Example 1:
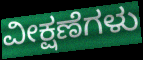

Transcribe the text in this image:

ವೀಕ್ಷಣೆಗಳು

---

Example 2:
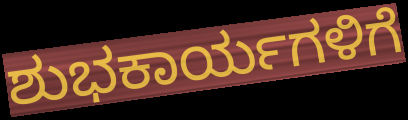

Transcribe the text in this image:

ಶುಭಕಾರ್ಯಗಳಿಗೆ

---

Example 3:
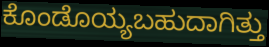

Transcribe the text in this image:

ಕೊಂಡೊಯ್ಯಬಹುದಾಗಿತ್ತು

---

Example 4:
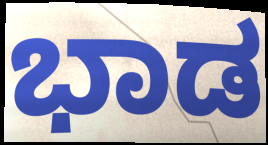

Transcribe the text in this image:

ಭಾಡ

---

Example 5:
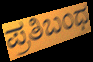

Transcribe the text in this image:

ಪ್ರತಿಬಂಧ